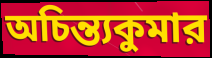
অচিন্ত্যকুমার